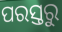
ପରସ୍ତରୁ